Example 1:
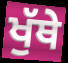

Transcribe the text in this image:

ਖੁੱਥੇ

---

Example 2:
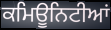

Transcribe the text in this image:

ਕਮਿਊਨਿਟੀਆਂ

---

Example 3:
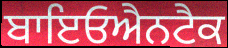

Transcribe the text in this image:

ਬਾਇਓਐਨਟੈਕ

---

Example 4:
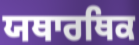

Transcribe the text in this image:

ਯਥਾਰਥਿਕ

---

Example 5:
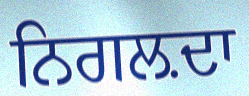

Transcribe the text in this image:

ਨਿਗਲ਼ਦਾ